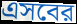
এসবের